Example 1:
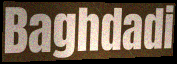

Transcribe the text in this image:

Baghdadi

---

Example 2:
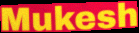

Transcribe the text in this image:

Mukesh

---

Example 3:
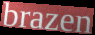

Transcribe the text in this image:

brazen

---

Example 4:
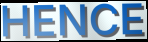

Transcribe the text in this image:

HENCE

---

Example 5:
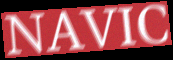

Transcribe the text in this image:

NAVIC